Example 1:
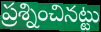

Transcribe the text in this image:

ప్రశ్నించినట్టు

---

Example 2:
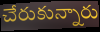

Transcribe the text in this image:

చేరుకున్నారు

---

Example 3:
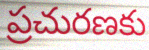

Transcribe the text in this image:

ప్రచురణకు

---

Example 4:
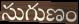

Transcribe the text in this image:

సుగుణం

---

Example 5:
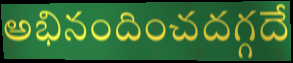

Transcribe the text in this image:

అభినందించదగ్గదే